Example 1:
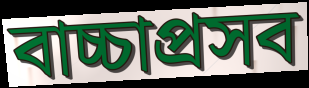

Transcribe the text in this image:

বাচ্চাপ্রসব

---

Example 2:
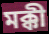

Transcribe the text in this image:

মক্কী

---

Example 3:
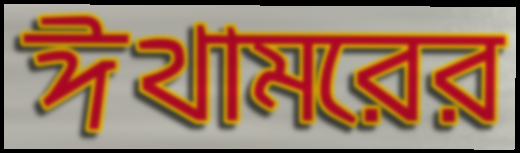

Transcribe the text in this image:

ঈথামরের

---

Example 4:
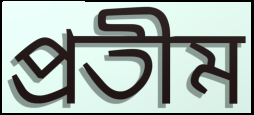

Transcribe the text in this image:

প্রতীম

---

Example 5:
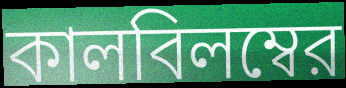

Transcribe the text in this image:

কালবিলম্বের